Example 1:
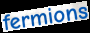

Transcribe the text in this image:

fermions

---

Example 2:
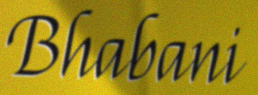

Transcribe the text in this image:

Bhabani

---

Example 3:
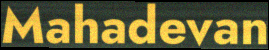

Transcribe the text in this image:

Mahadevan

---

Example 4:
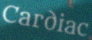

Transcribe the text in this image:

Cardiac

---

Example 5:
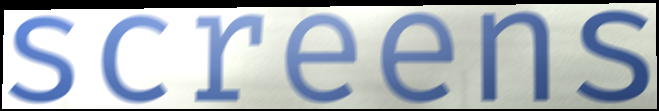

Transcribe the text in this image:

screens